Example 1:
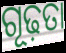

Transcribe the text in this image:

ଗୂଢ଼ତା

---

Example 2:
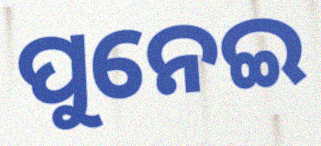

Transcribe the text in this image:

ପୁନେଇ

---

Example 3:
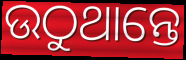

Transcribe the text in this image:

ଉଠୁଥାନ୍ତେ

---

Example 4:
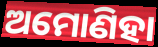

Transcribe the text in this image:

ଅମୋଣିହା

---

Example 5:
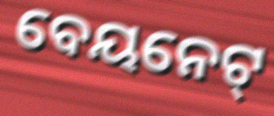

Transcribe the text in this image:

ବେୟନେଟ୍